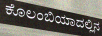
ಕೊಲಂಬಿಯಾದಲ್ಲಿನ